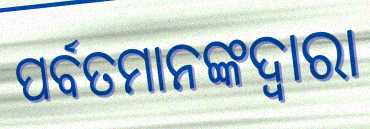
ପର୍ବତମାନଙ୍କଦ୍ଵାରା